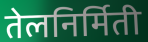
तेलनिर्मिती